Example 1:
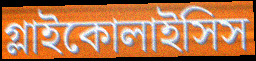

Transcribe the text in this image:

গ্লাইকোলাইসিস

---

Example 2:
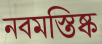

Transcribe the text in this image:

নবমস্তিষ্ক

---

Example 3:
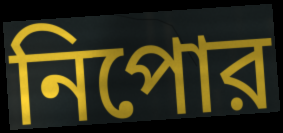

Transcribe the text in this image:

নিপোর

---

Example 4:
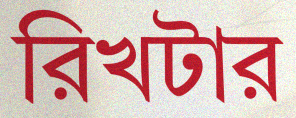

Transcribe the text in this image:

রিখটার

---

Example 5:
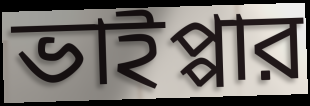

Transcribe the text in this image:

ভাইপ্পার